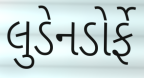
લુડેનડોર્ફે